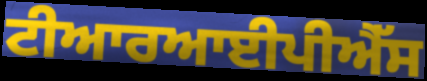
ਟੀਆਰਆਈਪੀਐੱਸ